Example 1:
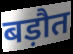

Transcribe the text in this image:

बड़ौत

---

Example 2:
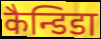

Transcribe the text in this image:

कैन्डिडा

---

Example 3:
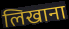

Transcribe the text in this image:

लिखाना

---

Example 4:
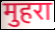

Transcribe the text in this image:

मुहरा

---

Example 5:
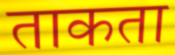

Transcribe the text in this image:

ताकता